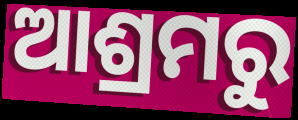
ଆଶ୍ରମରୁ